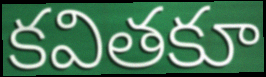
కవితకూ